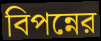
বিপন্নের